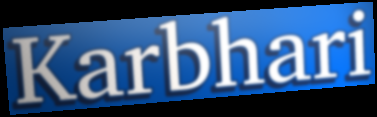
Karbhari